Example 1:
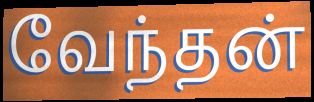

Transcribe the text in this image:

வேந்தன்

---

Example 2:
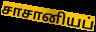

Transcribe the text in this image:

சாசானியப்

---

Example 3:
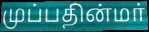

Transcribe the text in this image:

முப்பதின்மர்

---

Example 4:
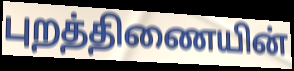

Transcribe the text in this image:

புறத்திணையின்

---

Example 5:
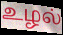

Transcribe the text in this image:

உழல்